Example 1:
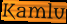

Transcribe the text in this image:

Kamlu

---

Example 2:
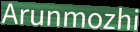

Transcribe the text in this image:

Arunmozhi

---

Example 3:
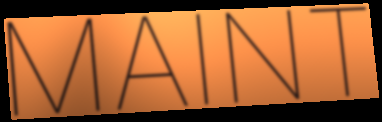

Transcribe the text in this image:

MAINT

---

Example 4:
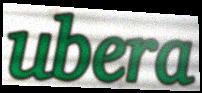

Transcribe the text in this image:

ubera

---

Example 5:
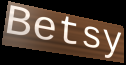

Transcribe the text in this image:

Betsy